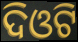
ଦିଓଟି